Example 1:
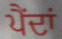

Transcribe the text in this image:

ਪੈਂਦਾਂ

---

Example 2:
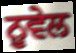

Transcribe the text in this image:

ਨੂਵੇਲ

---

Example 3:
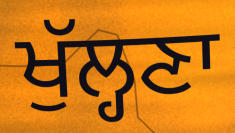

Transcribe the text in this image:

ਖੁੱਲ੍ਹਣਾ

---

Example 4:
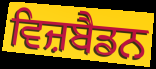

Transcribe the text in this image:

ਵਿਜ਼ਬੈਡਨ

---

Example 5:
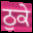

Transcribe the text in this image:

ਠੁਕੇ